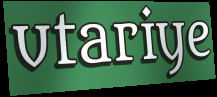
utariye